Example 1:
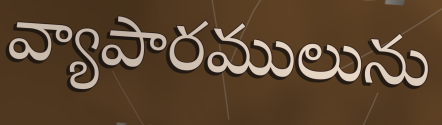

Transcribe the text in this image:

వ్యాపారములును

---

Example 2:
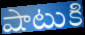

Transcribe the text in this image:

షాటుకి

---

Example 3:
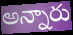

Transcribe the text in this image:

అన్నారు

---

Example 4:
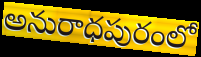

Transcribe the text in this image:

అనురాధపురంలో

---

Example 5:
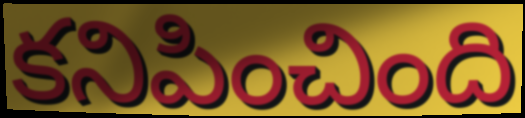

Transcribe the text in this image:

కనిపించింది